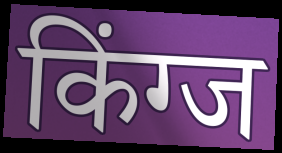
किंग्ज